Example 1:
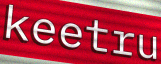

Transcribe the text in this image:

keetru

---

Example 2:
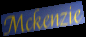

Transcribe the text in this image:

Mckenzie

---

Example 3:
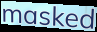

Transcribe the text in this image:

masked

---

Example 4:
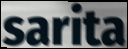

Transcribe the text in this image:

sarita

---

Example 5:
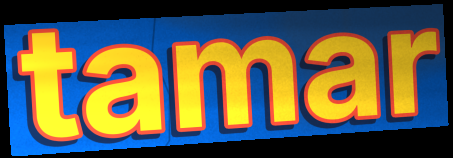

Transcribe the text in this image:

tamar